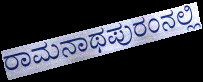
ರಾಮನಾಥಪುರಂನಲ್ಲಿ